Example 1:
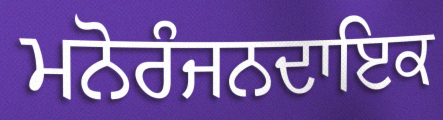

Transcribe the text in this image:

ਮਨੋਰੰਜਨਦਾਇਕ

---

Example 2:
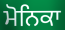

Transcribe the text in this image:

ਮੋਨਿਕਾ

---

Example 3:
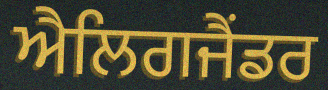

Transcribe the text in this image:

ਐਲਿਗਜੈਂਡਰ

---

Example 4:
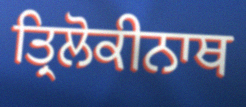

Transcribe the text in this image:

ਤ੍ਰਿਲੋਕੀਨਾਥ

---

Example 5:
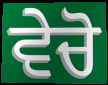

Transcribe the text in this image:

ਵੇਚੋ